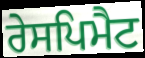
ਰੇਸਪਿਮੈਟ